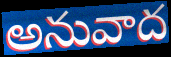
అనువాద